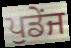
ਪੁਡੇਂਜ